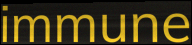
immune